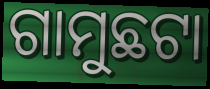
ଗାମୁଛଟା